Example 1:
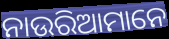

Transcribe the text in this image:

ନାଉରିଆମାନେ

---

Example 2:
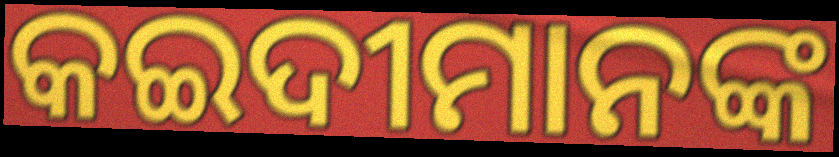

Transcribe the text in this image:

କଇଦୀମାନଙ୍କ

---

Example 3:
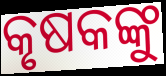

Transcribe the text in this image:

କୃଷକଙ୍କୁ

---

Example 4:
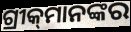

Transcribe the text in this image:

ଗ୍ରୀକ୍‌ମାନଙ୍କର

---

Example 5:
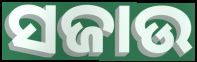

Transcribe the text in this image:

ସଜାଉ